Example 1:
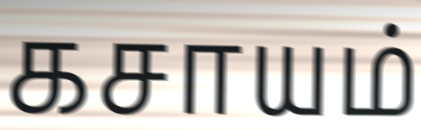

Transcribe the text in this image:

கசாயம்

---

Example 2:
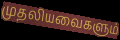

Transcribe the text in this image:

முதலியவைகளும்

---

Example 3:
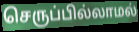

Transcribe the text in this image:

செருப்பில்லாமல்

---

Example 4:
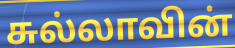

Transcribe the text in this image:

சுல்லாவின்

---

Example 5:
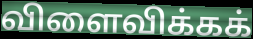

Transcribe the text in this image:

விளைவிக்கக்